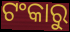
ଟଂକାରୁ